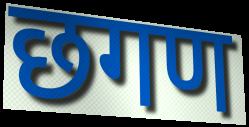
छगण